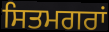
ਸਿਤਮਗਰਾਂ